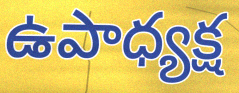
ఉపాధ్యక్ష